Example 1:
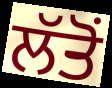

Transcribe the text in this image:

ਲੱਤੋਂ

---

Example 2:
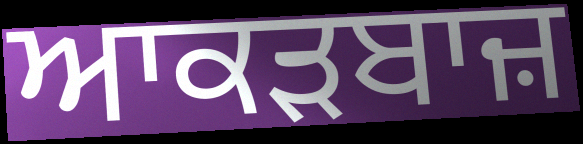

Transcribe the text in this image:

ਆਕੜਬਾਜ਼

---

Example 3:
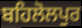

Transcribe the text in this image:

ਬਹਿਲੋਲਪੁਰ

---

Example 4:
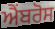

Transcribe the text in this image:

ਐਂਬਰੋਸ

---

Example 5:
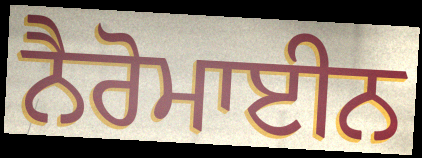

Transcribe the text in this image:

ਨੈਰੋਮਾਈਨ